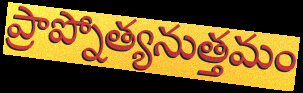
ప్రాప్నోత్యనుత్తమం